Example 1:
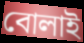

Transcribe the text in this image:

বোলাই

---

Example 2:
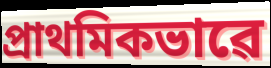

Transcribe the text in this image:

প্ৰাথমিকভাৱে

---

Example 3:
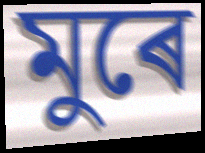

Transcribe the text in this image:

মুৰে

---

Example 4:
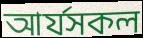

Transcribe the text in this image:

আৰ্যসকল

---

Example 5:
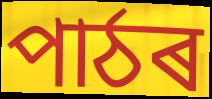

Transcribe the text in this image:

পাঠৰ